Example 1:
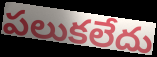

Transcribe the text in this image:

పలుకలేదు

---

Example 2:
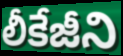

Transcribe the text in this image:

లీకేజీని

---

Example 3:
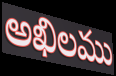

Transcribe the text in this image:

అఖిలము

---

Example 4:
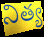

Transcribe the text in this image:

నిత్య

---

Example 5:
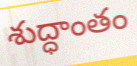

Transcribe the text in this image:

శుద్ధాంతం